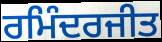
ਰਮਿੰਦਰਜੀਤ